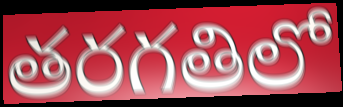
తరగతిలో